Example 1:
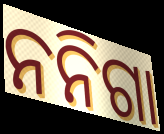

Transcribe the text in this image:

ନନିଗା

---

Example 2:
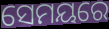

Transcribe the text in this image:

ସେମୟରେ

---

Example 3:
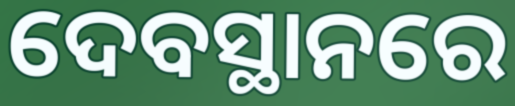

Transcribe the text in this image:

ଦେବସ୍ଥାନରେ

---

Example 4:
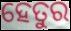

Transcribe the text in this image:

ହେତୁର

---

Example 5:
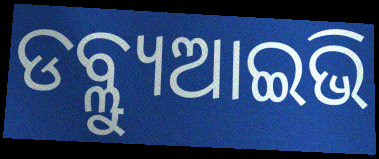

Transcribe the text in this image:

ଡବ୍ଲ୍ୟୁଆଇଭି